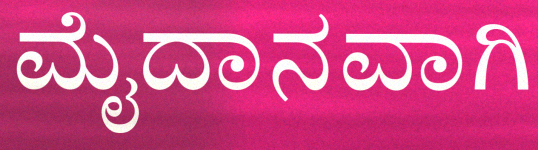
ಮೈದಾನವಾಗಿ